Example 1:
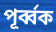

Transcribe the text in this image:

পূর্ব্বক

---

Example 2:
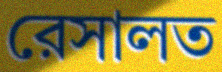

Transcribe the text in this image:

রেসালত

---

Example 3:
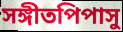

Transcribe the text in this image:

সঙ্গীতপিপাসু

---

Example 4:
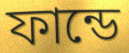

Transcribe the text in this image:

ফান্ডে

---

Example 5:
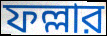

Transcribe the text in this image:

ফল্লার